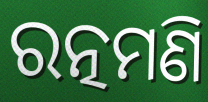
ରତ୍ନମଣି